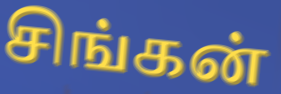
சிங்கன்